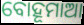
ବୋହୂମାଆ